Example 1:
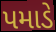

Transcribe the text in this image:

પમાડે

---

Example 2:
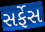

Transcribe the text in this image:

સર્ફેસ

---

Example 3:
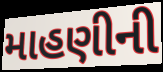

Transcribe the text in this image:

માહણીની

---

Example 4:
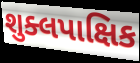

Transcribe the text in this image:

શુક્લપાક્ષિક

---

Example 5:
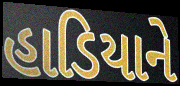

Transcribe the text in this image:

હાડિયાને